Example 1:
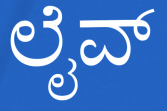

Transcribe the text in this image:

ಲೈವ್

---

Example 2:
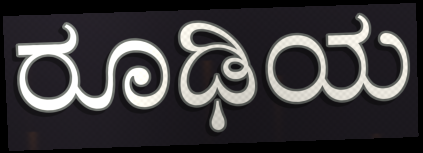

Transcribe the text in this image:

ರೂಢಿಯ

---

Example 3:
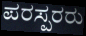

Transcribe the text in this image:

ಪರಸ್ಪರರು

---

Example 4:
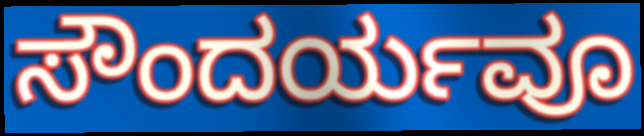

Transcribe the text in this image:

ಸೌಂದರ್ಯವೂ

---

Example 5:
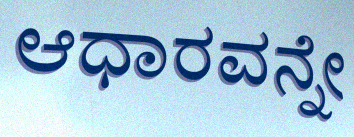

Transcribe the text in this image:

ಆಧಾರವನ್ನೇ